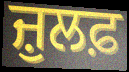
ਜ਼ੁਲਫ਼